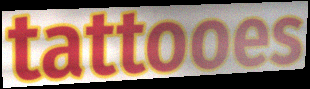
tattooes